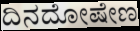
ದಿನದೋಷೇಣ